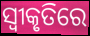
ସ୍ବୀକୃତିରେ